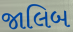
જાલિબ